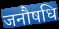
जनौषधि